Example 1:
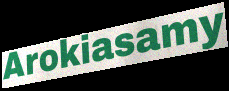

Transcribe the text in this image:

Arokiasamy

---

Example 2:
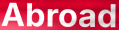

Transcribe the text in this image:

Abroad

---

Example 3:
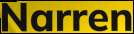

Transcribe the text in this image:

Narren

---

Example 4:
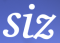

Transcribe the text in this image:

siz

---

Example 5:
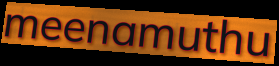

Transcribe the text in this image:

meenamuthu